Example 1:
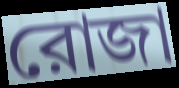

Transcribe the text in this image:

রোজা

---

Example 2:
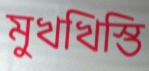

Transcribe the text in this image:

মুখখিস্তি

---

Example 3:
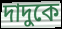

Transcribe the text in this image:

দাদুকে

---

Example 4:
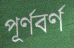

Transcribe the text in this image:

পূর্ণবর্ণ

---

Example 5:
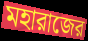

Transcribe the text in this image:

মহারাজের